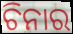
ଚିନାର